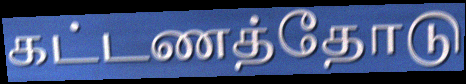
கட்டணத்தோடு